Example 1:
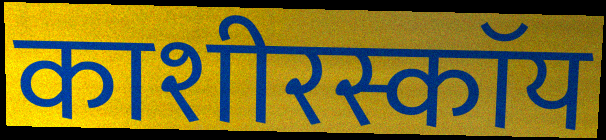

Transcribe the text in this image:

काशीरस्कॉय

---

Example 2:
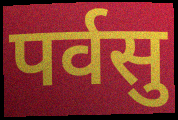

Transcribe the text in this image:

पर्वसु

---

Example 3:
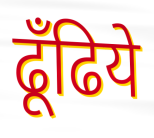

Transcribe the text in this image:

ढूँढिये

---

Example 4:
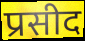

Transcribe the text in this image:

प्रसीद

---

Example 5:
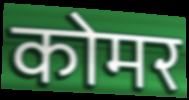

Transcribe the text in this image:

कोमर